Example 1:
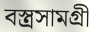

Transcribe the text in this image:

বস্ত্রসামগ্রী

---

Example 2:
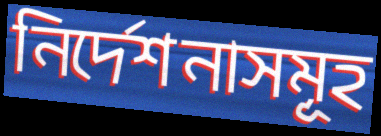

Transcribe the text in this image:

নির্দেশনাসমূহ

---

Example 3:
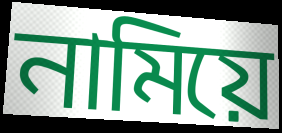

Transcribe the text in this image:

নামিয়ে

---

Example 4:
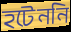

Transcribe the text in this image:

হটেননি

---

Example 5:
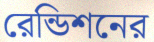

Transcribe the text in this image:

রেন্ডিশনের